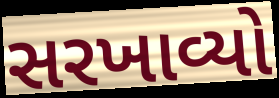
સરખાવ્યો